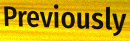
Previously